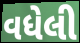
વધેલી